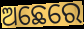
ଅଛେରେ